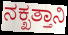
ನಕ್ಖತ್ತಾನಿ